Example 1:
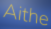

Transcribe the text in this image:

Aithe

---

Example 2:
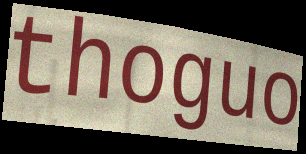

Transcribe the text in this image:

thoguo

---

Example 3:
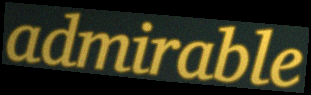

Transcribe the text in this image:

admirable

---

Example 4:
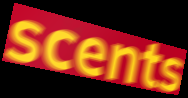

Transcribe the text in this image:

scents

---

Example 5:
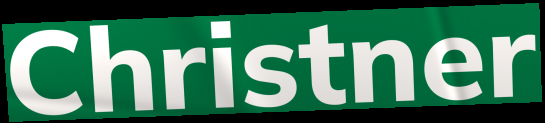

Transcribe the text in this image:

Christner